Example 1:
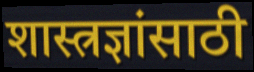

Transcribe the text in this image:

शास्त्रज्ञांसाठी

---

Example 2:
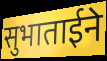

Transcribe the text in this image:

सुभाताईने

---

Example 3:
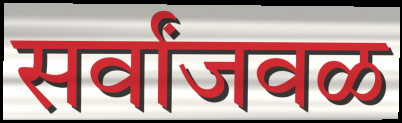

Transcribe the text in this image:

सर्वांजवळ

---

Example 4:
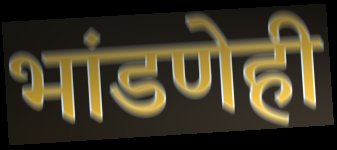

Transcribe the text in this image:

भांडणेही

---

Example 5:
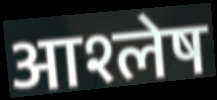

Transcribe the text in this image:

आश्लेष